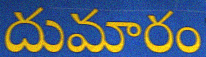
దుమారం